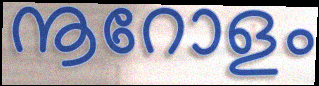
നൂറോളം